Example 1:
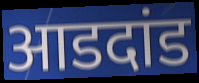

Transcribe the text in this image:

आडदांड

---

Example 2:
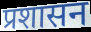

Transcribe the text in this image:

प्रशासन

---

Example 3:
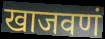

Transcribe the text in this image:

खाजवणं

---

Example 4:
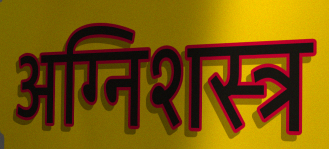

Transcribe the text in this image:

अग्निशस्त्र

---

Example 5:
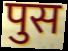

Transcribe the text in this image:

पुस